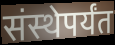
संस्थेपर्यंत